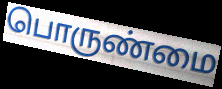
பொருண்மை